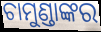
ଚାମୁଣ୍ଡାଙ୍କର